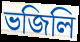
ভজিলি